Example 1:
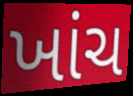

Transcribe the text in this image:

ખાંચ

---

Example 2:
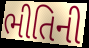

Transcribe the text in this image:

ભીતિની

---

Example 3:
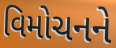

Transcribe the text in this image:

વિમોચનને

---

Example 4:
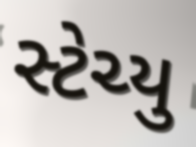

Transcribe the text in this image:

સ્ટેચ્યુ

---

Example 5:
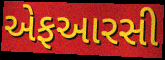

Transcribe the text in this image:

એફઆરસી